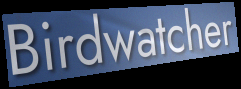
Birdwatcher